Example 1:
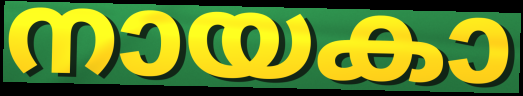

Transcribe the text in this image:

നായകാ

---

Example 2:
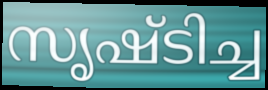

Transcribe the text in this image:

സൃഷ്ടിച്ച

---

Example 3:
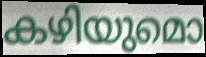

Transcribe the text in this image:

കഴിയുമൊ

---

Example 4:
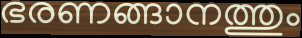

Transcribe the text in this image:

ഭരണങ്ങാനത്തും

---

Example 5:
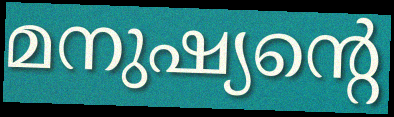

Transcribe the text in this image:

മനുഷ്യന്റെ